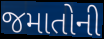
જમાતોની